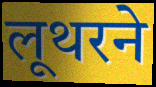
लूथरने